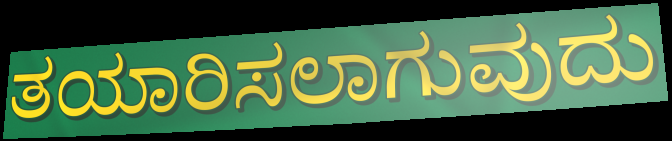
ತಯಾರಿಸಲಾಗುವುದು